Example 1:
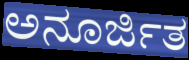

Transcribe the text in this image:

ಅನೂರ್ಜಿತ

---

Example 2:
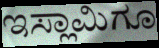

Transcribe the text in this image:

ಇಸ್ಲಾಮಿಗೂ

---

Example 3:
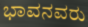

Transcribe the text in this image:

ಭಾವನವರು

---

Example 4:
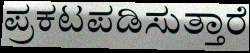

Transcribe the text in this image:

ಪ್ರಕಟಪಡಿಸುತ್ತಾರೆ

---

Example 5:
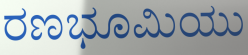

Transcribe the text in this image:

ರಣಭೂಮಿಯು